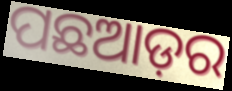
ପଛଆଡ଼ର